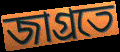
জাগ্রতে